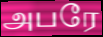
அபரே